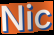
Nic